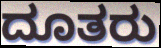
ದೂತರು